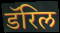
डॅरिल